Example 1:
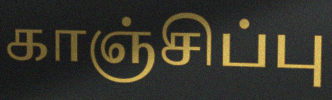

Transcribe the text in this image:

காஞ்சிப்பு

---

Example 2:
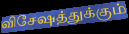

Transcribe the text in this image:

விசேஷத்துக்கும்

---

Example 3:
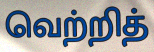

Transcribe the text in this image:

வெற்றித்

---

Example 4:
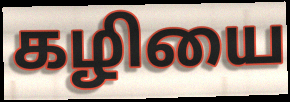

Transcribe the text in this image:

கழியை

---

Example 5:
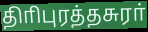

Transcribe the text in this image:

திரிபுரத்தசுரர்